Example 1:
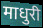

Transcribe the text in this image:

माधुरी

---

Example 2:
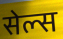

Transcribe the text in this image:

सेल्स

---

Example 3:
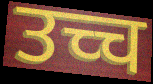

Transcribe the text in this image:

उच्‍च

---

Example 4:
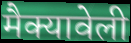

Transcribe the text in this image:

मैक्यावेली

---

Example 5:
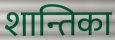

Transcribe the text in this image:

शान्तिका